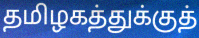
தமிழகத்துக்குத்